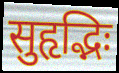
सुहृद्भिः